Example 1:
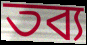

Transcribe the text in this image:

তব্য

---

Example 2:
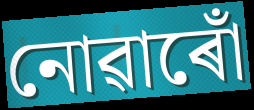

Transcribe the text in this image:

নোৱাৰোঁ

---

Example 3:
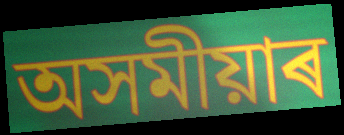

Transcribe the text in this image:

অসমীয়াৰ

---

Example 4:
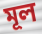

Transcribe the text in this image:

মূল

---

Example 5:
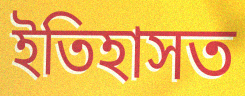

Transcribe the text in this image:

ইতিহাসত